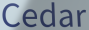
Cedar